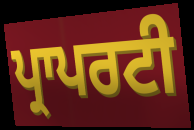
ਪ੍ਰਾਪਰਟੀ